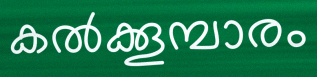
കൽക്കൂമ്പാരം